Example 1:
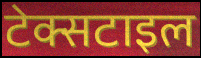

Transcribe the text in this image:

टेक्सटाइल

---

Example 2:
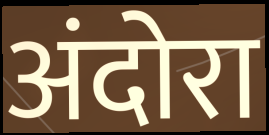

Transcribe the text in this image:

अंदोरा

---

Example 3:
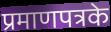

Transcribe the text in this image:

प्रमाणपत्रके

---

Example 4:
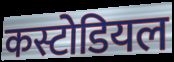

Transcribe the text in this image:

कस्टोडियल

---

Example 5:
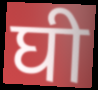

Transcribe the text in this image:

घी